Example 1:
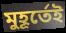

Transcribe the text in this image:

মুহূর্তেই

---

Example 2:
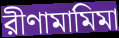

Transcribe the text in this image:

রীণামামিমা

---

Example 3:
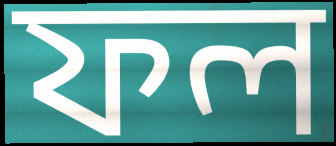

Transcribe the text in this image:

ফল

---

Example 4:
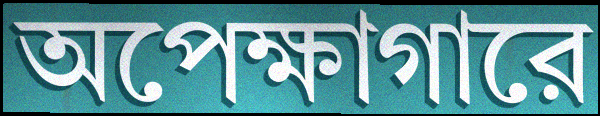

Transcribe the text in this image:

অপেক্ষাগারে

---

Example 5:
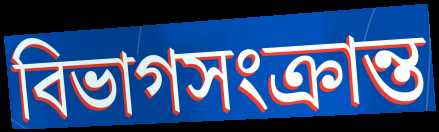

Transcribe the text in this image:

বিভাগসংক্রান্ত